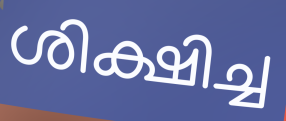
ശിക്ഷിച്ച